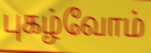
புகழ்வோம்